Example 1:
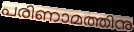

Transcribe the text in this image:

പരിണാമത്തിനു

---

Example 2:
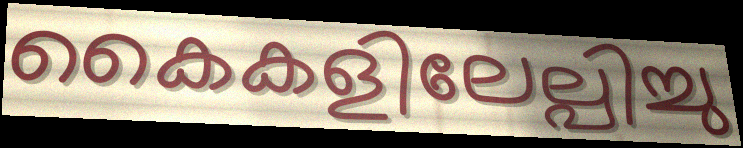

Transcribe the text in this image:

കൈകളിലേല്പിച്ചു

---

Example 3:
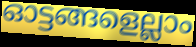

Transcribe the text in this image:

ഓട്ടങ്ങളെല്ലാം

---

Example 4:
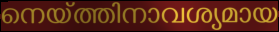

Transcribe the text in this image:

നെയ്ത്തിനാവശ്യമായ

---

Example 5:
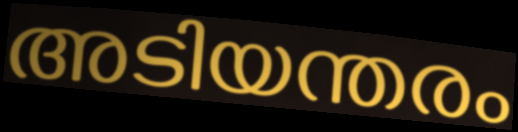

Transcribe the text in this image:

അടിയന്തരം